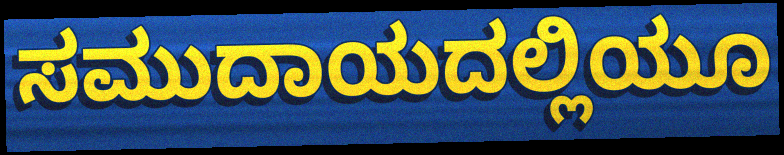
ಸಮುದಾಯದಲ್ಲಿಯೂ